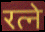
रत्ने